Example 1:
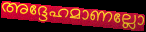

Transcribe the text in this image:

അദ്ദേഹമാണല്ലോ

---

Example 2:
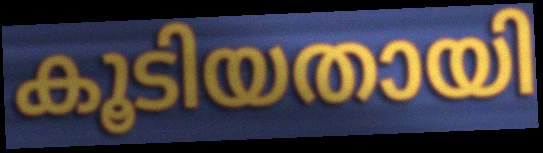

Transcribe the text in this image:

കൂടിയതായി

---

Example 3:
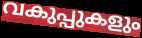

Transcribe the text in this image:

വകുപ്പുകളും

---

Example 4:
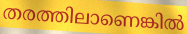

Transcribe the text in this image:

തരത്തിലാണെങ്കിൽ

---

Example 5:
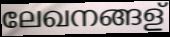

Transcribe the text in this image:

ലേഖനങ്ങള്